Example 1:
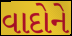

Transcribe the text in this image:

વાદોને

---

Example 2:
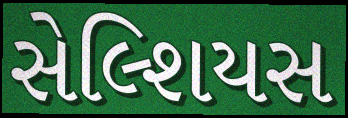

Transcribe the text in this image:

સેલ્શિયસ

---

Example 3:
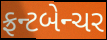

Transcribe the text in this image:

ફ્રન્ટબેન્ચર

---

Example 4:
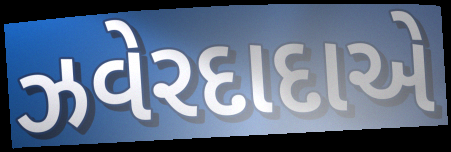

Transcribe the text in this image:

ઝવેરદાદાએ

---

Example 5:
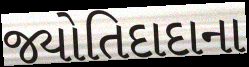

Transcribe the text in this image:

જ્યોતિદાદાના